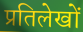
प्रतिलेखों